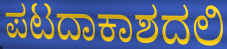
ಪಟದಾಕಾಶದಲಿ